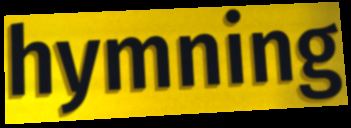
hymning